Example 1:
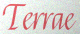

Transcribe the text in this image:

Terrae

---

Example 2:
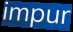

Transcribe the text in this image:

impur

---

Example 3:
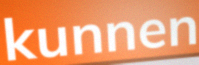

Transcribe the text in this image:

kunnen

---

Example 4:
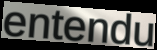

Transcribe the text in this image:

entendu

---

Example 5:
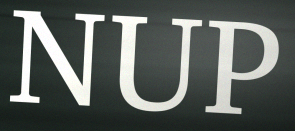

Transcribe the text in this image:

NUP